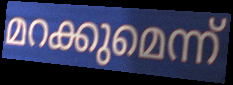
മറക്കുമെന്ന്